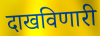
दाखविणारी